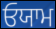
ਓਯਾਮ